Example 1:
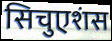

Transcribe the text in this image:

सिचुएशंस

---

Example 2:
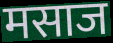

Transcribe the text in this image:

मसाज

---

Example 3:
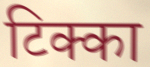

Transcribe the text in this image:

टिक्का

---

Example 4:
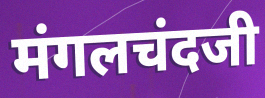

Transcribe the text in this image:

मंगलचंदजी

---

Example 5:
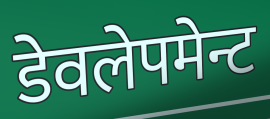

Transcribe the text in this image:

डेवलेपमेन्ट